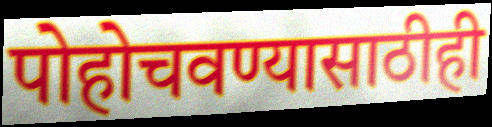
पोहोचवण्यासाठीही